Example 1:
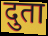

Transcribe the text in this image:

दुता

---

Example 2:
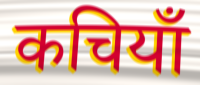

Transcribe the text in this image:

कचियाँ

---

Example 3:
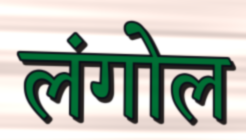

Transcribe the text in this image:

लंगोल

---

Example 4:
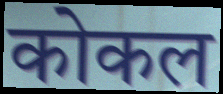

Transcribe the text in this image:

कोकल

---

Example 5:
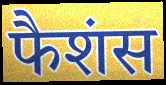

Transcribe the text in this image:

फैशंस